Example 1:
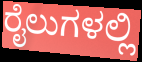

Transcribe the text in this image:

ರೈಲುಗಳಲ್ಲಿ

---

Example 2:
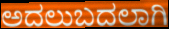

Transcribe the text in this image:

ಅದಲುಬದಲಾಗಿ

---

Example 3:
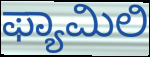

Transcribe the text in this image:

ಫ್ಯಾಮಿಲಿ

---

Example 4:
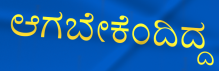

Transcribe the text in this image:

ಆಗಬೇಕೆಂದಿದ್ದ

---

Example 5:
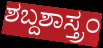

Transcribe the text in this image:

ಶಬ್ದಶಾಸ್ತ್ರಂ